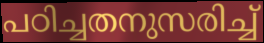
പഠിച്ചതനുസരിച്ച്